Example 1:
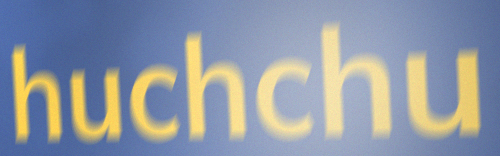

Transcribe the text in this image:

huchchu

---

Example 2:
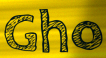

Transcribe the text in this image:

Gho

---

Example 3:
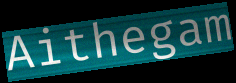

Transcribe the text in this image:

Aithegam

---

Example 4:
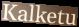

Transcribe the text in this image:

Kalketu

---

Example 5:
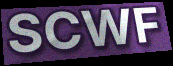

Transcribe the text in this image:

SCWF